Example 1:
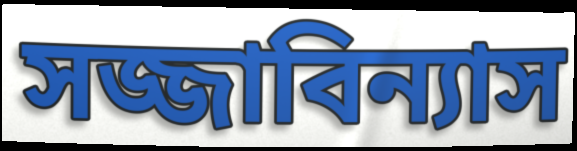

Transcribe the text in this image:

সজ্জাবিন্যাস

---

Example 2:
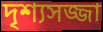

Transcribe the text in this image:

দৃশ্যসজ্জা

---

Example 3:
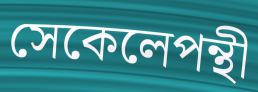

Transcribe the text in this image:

সেকেলেপন্থী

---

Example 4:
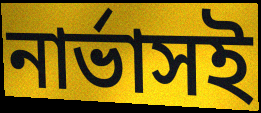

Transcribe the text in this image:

নার্ভাসই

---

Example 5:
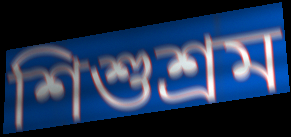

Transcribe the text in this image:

শিশুশ্রম